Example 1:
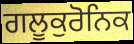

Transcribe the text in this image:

ਗਲੂਕੁਰੋਨਿਕ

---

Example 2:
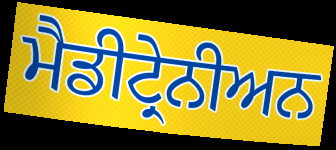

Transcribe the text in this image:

ਮੈਡੀਟ੍ਰੇਨੀਅਨ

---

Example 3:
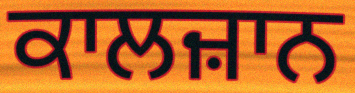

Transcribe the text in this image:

ਕਾਲਜ਼ਾਨ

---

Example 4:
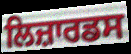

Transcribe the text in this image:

ਲਿਜ਼ਾਰਡਸ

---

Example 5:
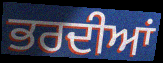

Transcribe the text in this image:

ਭਰਦੀਆਂ